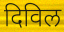
दिविल